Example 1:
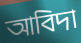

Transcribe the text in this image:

আবিদা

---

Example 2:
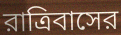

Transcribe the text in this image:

রাত্রিবাসের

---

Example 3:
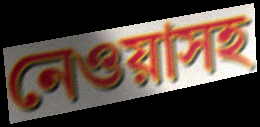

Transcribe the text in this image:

নেওয়াসহ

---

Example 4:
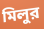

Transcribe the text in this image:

মিলুর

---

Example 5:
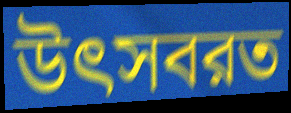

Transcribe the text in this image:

উৎসবরত